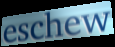
eschew